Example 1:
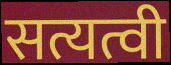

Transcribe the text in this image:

सत्यत्वी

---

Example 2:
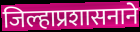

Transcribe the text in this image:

जिल्हाप्रशासनाने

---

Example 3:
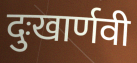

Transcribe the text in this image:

दुःखार्णवी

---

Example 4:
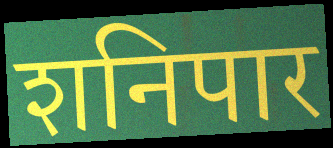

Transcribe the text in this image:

शनिपार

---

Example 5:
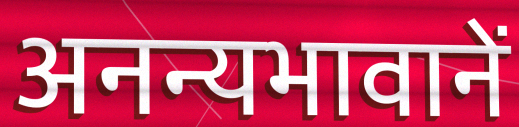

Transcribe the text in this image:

अनन्यभावानें